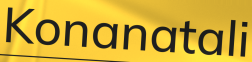
Konanatali